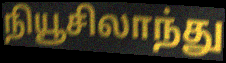
நியூசிலாந்து